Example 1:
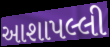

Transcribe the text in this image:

આશાપલ્લી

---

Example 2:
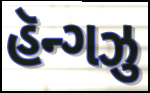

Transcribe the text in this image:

હૅન્ગઝુ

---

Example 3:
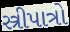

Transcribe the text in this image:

સ્ત્રીપાત્રો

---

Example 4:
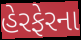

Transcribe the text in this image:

હેરફેરના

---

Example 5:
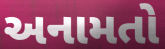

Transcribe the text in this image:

અનામતો